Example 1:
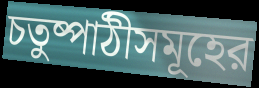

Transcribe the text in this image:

চতুষ্পাঠীসমূহের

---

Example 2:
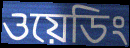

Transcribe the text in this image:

ওয়েডিং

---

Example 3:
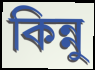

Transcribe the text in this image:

কিন্নু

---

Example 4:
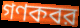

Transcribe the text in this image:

গণকবর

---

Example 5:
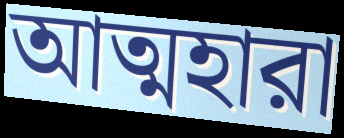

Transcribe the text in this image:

আত্মহারা